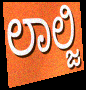
ಲಾಲ್ಜಿ